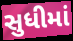
સુધીમાં